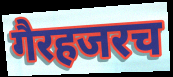
गैरहजरच